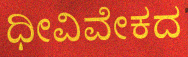
ಧೀವಿವೇಕದ